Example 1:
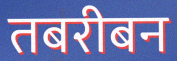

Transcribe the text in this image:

तबरीबन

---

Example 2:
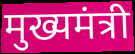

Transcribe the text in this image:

मुख्‍यमंत्री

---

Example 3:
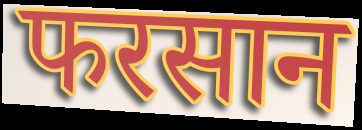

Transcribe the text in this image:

फरसान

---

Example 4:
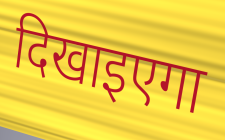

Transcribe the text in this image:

दिखाइएगा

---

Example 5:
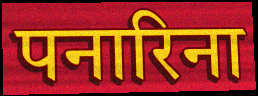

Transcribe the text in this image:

पनारिना